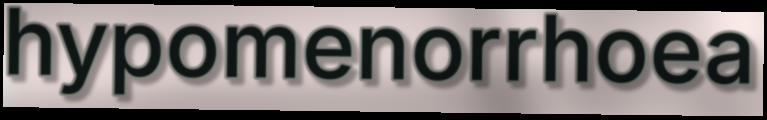
hypomenorrhoea